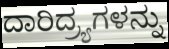
ದಾರಿದ್ರ್ಯಗಳನ್ನು